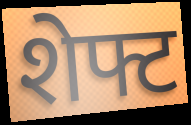
शेफ्ट